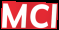
MCl